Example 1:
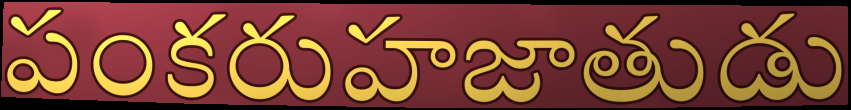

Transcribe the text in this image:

పంకరుహజాతుడు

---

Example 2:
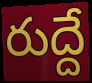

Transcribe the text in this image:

రుద్దే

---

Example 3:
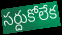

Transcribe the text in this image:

సర్దుకోలేక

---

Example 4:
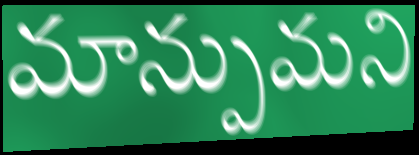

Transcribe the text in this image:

మాన్పుమని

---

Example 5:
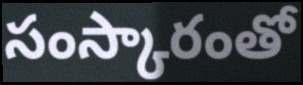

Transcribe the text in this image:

సంస్కారంతో